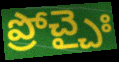
ప్రోచ్చైః